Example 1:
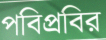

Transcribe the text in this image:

পবিপ্রবির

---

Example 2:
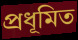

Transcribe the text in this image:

প্রধূমিত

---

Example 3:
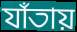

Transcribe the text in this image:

যাঁতায়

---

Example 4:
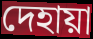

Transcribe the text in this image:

দেহায়া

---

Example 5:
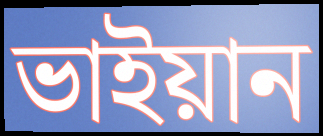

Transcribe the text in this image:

ভাইয়ান